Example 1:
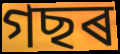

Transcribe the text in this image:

গছৰ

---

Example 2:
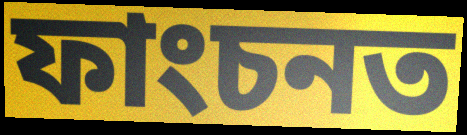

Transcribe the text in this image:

ফাংচনত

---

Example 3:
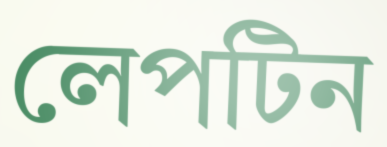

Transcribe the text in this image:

লেপটিন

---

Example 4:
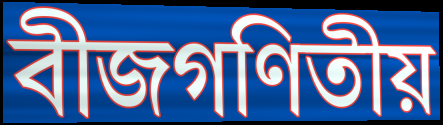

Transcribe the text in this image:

বীজগণিতীয়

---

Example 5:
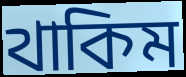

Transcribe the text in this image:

থাকিম